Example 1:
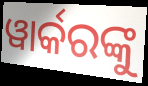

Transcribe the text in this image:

ୱାର୍କରଙ୍କୁ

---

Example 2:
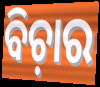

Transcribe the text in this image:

ବିଚ଼ାର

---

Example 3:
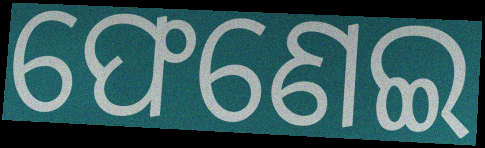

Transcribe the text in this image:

ଫେଣେଇ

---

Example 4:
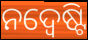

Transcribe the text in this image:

ନଦ୍ୱେଷ୍ଟି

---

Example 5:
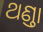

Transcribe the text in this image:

ଥଣ୍ଡା